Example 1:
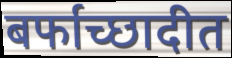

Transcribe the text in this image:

बर्फाच्छादीत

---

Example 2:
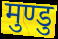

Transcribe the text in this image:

मुण्डु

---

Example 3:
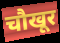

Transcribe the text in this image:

चौखूर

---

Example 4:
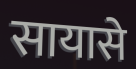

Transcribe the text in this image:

सायासे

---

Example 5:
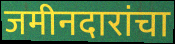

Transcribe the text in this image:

जमीनदारांचा